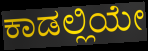
ಕಾಡಲ್ಲಿಯೇ